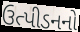
ઉત્પીડનનો